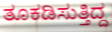
ತೂಕಡಿಸುತ್ತಿದ್ದ